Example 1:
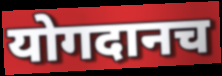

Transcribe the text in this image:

योगदानच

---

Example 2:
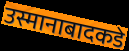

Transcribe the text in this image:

उस्मानाबादकडे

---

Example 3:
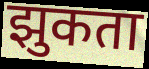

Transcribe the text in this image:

झुकता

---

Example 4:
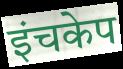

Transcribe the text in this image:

इंचकेप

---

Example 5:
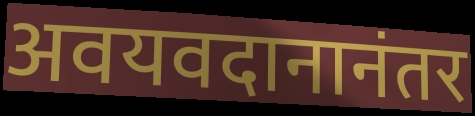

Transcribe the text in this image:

अवयवदानानंतर